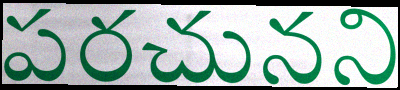
పరచునని